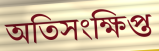
অতিসংক্ষিপ্ত